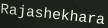
Rajashekhara